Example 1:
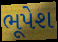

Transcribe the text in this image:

ભૂપેશ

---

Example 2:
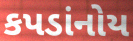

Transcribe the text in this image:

કપડાંનોય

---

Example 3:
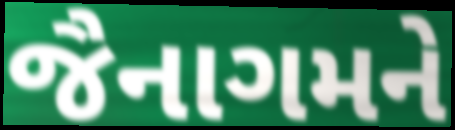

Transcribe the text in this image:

જૈનાગમને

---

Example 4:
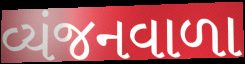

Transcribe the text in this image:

વ્યંજનવાળા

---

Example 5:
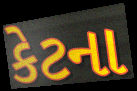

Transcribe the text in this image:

કેટના